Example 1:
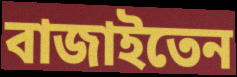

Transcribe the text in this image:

বাজাইতেন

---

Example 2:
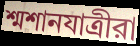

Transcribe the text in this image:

শ্মশানযাত্রীরা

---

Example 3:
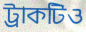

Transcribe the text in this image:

ট্রাকটিও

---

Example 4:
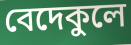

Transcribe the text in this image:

বেদেকুলে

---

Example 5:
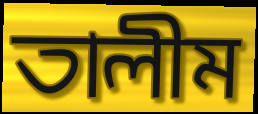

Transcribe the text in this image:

তালীম